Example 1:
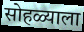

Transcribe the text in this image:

सोहळ्याला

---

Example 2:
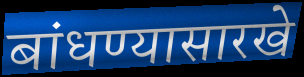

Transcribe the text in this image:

बांधण्यासारखे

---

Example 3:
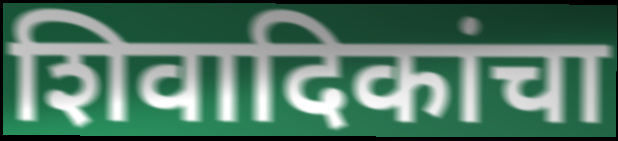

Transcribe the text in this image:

शिवादिकांचा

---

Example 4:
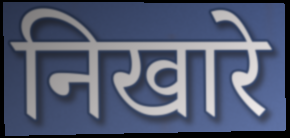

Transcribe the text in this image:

निखारे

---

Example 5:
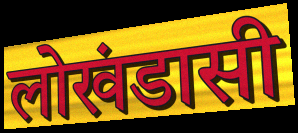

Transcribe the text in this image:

लोखंडासी